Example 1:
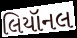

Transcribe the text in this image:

લિયૉનલ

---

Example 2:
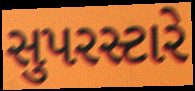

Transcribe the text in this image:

સુપરસ્ટારે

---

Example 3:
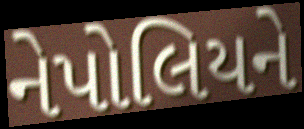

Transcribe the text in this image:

નેપોલિયને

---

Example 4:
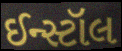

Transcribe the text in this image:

ઈન્સ્ટૉલ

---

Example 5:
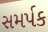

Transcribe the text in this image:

સમર્પક